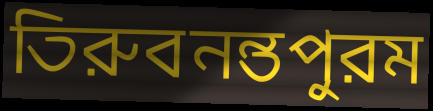
তিরুবনন্তপুরম